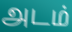
அடம்